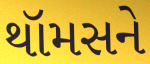
થૉમસને